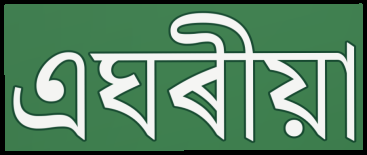
এঘৰীয়া